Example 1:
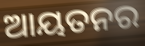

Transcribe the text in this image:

ଆୟତନର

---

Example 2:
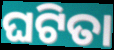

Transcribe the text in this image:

ଘଟିତା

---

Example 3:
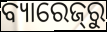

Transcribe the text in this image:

ବ୍ୟାରେଜ୍‌ରୁ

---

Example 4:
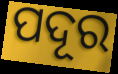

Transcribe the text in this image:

ପଦୂର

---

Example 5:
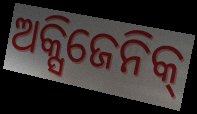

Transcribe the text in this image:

ଅକ୍ସିଜେନିକ୍